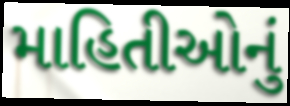
માહિતીઓનું